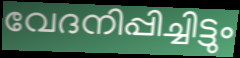
വേദനിപ്പിച്ചിട്ടും